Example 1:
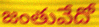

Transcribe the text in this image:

జంతువేదో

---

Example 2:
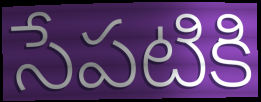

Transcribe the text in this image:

సేపటికి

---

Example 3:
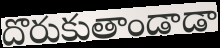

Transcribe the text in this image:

దొరుకుతాండాడా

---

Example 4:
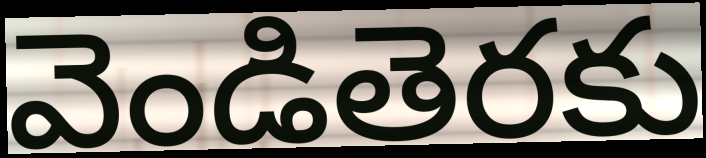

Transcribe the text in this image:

వెండితెరకు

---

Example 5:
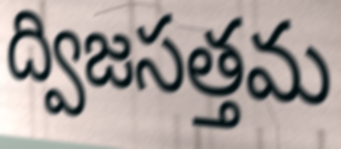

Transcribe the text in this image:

ద్విజసత్తమ